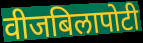
वीजबिलापोटी